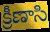
క్రీణాసి